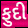
ફુદી